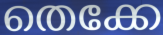
തെക്കേ